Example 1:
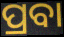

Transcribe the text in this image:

ପ୍ରବା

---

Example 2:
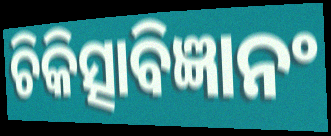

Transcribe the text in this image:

ଚିକିତ୍ସାବିଜ୍ଞାନଂ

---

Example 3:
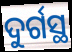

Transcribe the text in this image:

ଦୁର୍ଗସ୍ଥ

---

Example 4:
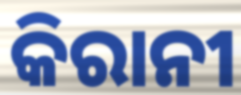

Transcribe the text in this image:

କିରାନୀ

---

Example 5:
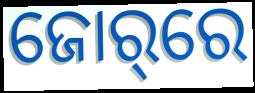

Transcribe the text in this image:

ଜୋର୍‌ରେ